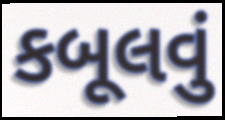
કબૂલવું